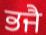
ਭਜੈ